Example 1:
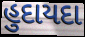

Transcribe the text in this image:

હુદાયદા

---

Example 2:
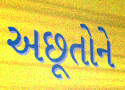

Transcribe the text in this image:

અછૂતોને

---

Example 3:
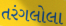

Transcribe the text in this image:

તરંગલોલા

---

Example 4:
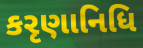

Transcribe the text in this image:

કરૃણાનિધિ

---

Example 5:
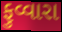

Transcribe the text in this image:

ફુવ્વારા